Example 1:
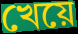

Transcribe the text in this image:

খেয়ে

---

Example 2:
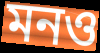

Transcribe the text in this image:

মনও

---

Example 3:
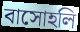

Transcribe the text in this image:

বাসোহলি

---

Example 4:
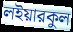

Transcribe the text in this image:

লইয়ারকুল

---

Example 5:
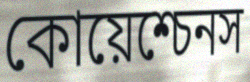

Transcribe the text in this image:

কোয়েশ্চেনস